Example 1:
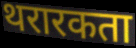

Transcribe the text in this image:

थरारकता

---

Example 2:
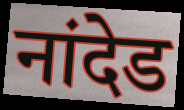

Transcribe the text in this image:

नांदेड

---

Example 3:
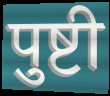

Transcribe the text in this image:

पुष्टी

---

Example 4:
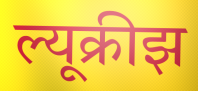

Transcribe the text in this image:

ल्यूक्रीझ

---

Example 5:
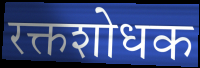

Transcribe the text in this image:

रक्तशोधक